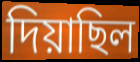
দিয়াছিল